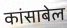
कांसाबेल